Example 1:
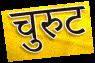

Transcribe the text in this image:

चुरुट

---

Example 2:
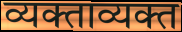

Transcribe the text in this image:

व्यक्ताव्यक्त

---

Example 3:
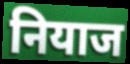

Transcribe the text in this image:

नियाज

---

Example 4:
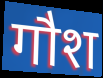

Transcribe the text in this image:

गौश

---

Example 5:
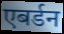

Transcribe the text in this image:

एबर्डन